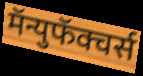
मॅन्युफॅक्चर्स